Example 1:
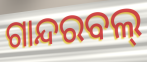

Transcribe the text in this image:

ଗାନ୍ଦରବଲ୍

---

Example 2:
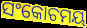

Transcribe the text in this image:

ସଂକୋଚମୟ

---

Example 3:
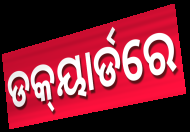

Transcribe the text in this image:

ଡକ୍‍ୟାର୍ଡରେ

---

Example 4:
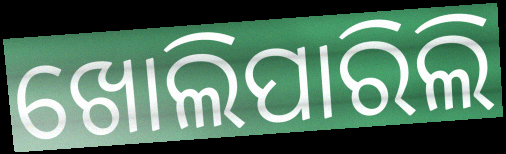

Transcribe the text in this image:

ଖୋଲିପାରିଲି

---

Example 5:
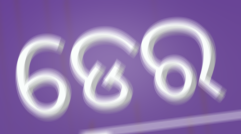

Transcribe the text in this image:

ଡେର